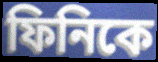
ফিনিকে